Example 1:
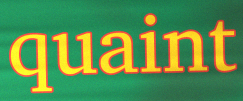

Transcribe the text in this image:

quaint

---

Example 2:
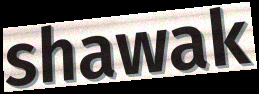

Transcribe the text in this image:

shawak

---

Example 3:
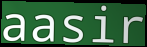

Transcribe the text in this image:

aasir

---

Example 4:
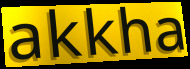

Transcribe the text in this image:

akkha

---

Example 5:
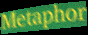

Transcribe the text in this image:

Metaphor